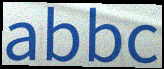
abbc